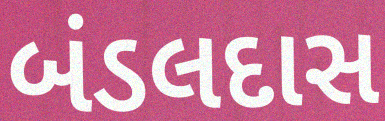
બંડલદાસ